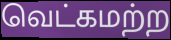
வெட்கமற்ற